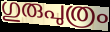
ഗുരുപുത്രം